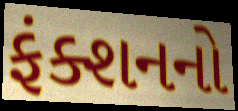
ફંક્શનનો